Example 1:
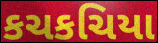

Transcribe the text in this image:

કચકચિયા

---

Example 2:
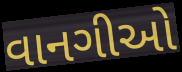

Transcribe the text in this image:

વાનગીઓ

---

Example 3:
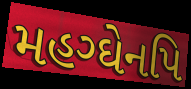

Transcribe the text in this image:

મહગ્ઘેનપિ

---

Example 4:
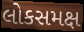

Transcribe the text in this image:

લોકસમક્ષ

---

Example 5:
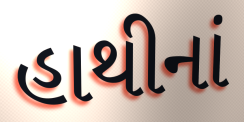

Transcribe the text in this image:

હાથીનાં